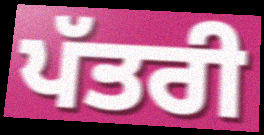
ਪੱਤਰੀ